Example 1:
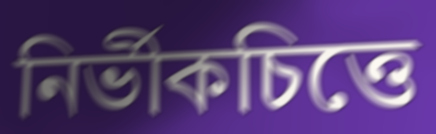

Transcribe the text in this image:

নির্ভীকচিত্তে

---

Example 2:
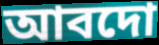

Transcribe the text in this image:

আবদো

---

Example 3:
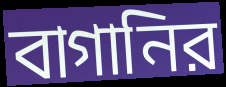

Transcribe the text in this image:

বাগানির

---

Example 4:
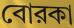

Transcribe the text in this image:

বোরকা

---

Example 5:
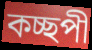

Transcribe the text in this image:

কচ্ছপী